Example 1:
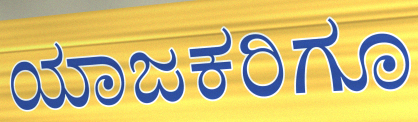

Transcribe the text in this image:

ಯಾಜಕರಿಗೂ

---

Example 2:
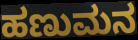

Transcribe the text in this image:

ಹಣುಮನ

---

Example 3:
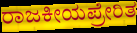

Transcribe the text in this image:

ರಾಜಕೀಯಪ್ರೇರಿತ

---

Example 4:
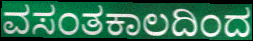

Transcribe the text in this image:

ವಸಂತಕಾಲದಿಂದ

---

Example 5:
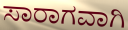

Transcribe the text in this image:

ಸಾರಾಗವಾಗಿ